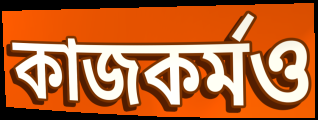
কাজকর্মও